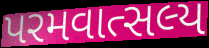
પરમવાત્સલ્ય